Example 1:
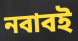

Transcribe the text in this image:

নবাবই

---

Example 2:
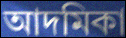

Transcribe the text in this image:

আদমিকা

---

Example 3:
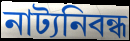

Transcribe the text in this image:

নাট্যনিবন্ধ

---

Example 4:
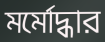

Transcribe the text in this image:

মর্মোদ্ধার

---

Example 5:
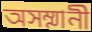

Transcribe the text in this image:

অসম্মানী